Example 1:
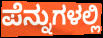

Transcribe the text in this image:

ಪೆನ್ನುಗಳಲ್ಲಿ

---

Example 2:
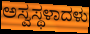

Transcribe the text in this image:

ಅಸ್ವಸ್ಥಳಾದಳು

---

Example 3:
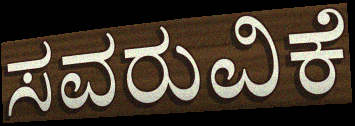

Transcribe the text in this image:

ಸವರುವಿಕೆ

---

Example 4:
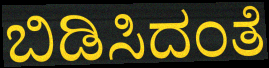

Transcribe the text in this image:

ಬಿಡಿಸಿದಂತೆ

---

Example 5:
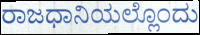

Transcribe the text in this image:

ರಾಜಧಾನಿಯಲ್ಲೊಂದು